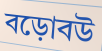
বড়োবউ